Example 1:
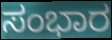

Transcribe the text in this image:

ಸಂಭಾರ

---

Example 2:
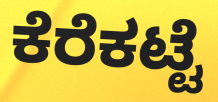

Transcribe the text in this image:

ಕೆರೆಕಟ್ಟೆ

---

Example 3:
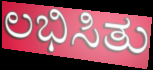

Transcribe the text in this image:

ಲಭಿಸಿತು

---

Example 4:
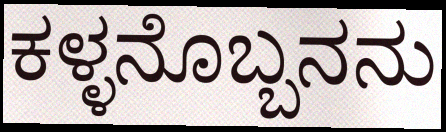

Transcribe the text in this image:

ಕಳ್ಳನೊಬ್ಬನನು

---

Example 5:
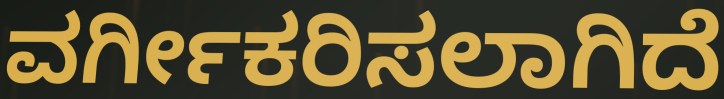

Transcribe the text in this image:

ವರ್ಗೀಕರಿಸಲಾಗಿದೆ